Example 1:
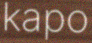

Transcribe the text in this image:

kapo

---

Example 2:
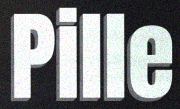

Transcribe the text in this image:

Pille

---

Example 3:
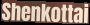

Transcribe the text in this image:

Shenkottai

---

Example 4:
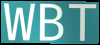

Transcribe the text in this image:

WBT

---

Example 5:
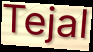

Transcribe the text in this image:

Tejal